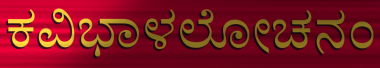
ಕವಿಭಾಳಲೋಚನಂ